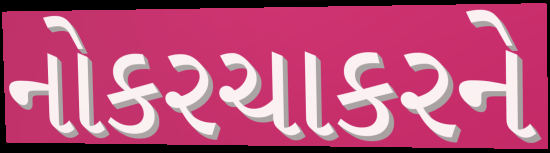
નોકરચાકરને